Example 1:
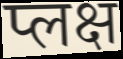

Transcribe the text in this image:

प्लक्ष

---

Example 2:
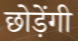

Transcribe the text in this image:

छोड़ेंगी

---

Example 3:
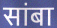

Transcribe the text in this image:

सांबा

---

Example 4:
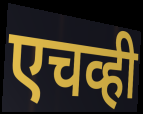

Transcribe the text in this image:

एचव्ही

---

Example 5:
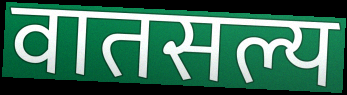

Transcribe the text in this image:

वातसल्य